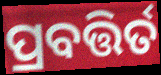
ପ୍ରବତ୍ତିର୍ତ